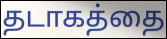
தடாகத்தை